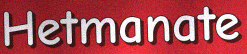
Hetmanate